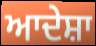
ਆਦੇਸ਼ਾ